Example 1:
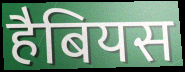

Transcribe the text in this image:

हैबियस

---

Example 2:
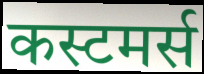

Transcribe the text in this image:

कस्टमर्स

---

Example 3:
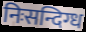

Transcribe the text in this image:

निःसन्दिग्ध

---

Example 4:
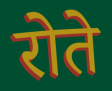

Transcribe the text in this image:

रोते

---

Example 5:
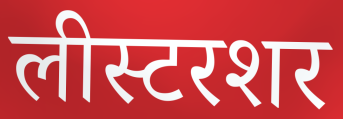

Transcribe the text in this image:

लीस्टरशर